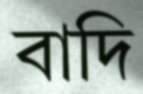
বাদি